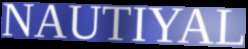
NAUTIYAL